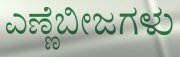
ಎಣ್ಣೆಬೀಜಗಳು